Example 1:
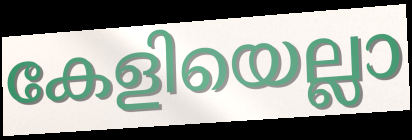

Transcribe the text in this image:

കേളിയെല്ലാ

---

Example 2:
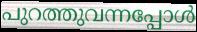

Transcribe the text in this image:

പുറത്തുവന്നപ്പോൾ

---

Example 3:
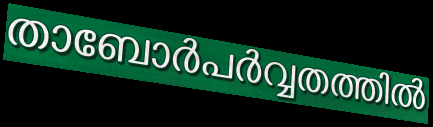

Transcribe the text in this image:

താബോർപർവ്വതത്തിൽ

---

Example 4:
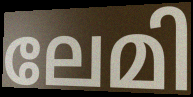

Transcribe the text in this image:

ലേമി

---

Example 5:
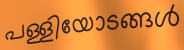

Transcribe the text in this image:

പള്ളിയോടങ്ങൾ